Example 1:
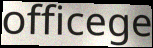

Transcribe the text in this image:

officege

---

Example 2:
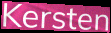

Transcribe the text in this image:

Kersten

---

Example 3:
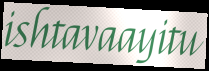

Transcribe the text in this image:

ishtavaayitu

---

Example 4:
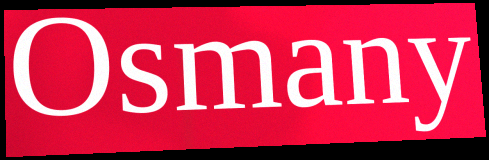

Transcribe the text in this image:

Osmany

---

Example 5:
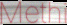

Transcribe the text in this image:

Methi